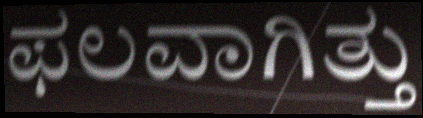
ಫಲವಾಗಿತ್ತು